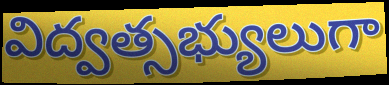
విద్వత్సభ్యులుగా